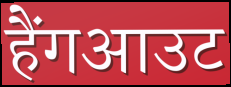
हैंगआउट